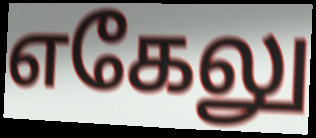
எகேலு